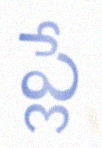
ప్లే